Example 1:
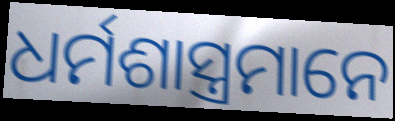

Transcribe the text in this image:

ଧର୍ମଶାସ୍ତ୍ରମାନେ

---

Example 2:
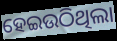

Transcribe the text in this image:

ହେଇଉଠିଥିଲା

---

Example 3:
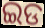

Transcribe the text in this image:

ଇଡ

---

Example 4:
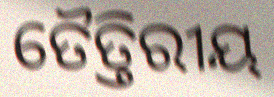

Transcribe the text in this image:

ତୈତ୍ତିରୀୟ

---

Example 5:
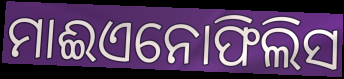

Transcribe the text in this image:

ମାଈଏନୋଫିଲିସ